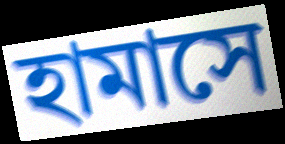
হামাসে